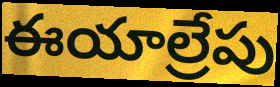
ఈయాల్రేపు